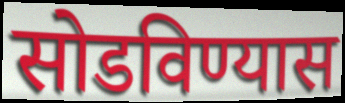
सोडविण्यास